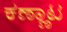
ಕಣ್ಣಾಟ